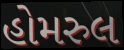
હોમરુલ